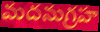
మదనుగ్రహ